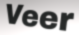
Veer